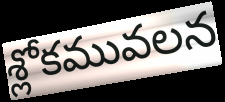
శ్లోకమువలన